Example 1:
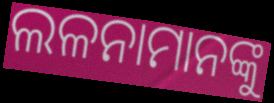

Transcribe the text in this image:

ଲଳନାମାନଙ୍କୁ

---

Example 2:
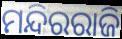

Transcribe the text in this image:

ମନ୍ଦିରରାଜି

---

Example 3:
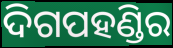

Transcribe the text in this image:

ଦିଗପହଣ୍ଡିର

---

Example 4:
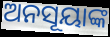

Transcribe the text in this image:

ଅନସୂୟାଙ୍କ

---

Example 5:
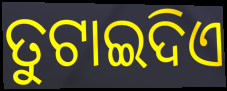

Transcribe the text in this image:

ତୁଟାଇଦିଏ